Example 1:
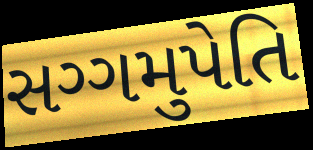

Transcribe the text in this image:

સગ્ગમુપેતિ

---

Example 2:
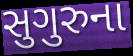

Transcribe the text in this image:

સુગુરુના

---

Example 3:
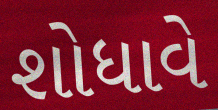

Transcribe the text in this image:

શોધાવે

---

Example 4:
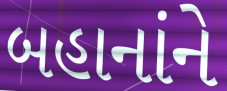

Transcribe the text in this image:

બહાનાંને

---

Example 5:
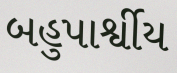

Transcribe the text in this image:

બહુપાર્શ્વીય